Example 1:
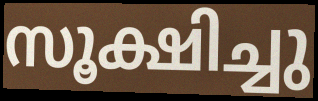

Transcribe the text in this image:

സൂക്ഷിച്ചു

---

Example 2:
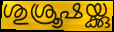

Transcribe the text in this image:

ശുശ്രൂഷയ്ക്കു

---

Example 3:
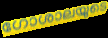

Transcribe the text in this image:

ഗോശാലയുടെ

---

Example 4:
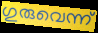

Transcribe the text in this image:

ഗുരുവെന്ന്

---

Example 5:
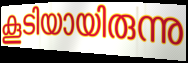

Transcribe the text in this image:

കൂടിയായിരുന്നു